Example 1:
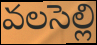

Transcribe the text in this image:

వలసెల్లి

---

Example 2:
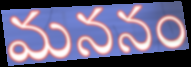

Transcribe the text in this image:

మననం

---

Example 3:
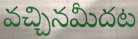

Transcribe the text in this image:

వచ్చినమీదట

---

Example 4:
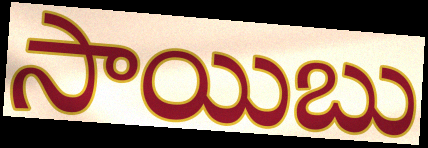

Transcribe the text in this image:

సాయిబు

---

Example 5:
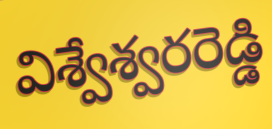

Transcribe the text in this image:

విశ్వేశ్వరరెడ్డి